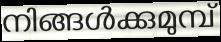
നിങ്ങൾക്കുമുമ്പ്